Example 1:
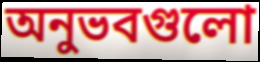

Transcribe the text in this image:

অনুভবগুলো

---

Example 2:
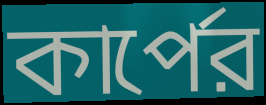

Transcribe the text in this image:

কার্পের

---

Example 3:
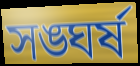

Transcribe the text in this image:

সঙ্ঘর্ষ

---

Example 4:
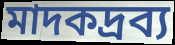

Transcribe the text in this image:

মাদকদ্রব্য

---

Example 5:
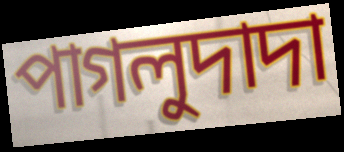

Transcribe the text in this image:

পাগলুদাদা